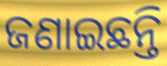
ଜଣାଇଛନ୍ତି